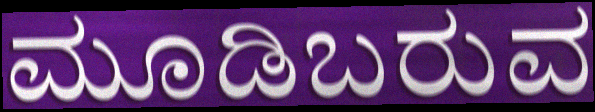
ಮೂಡಿಬರುವ